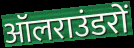
ऑलराउंडरों